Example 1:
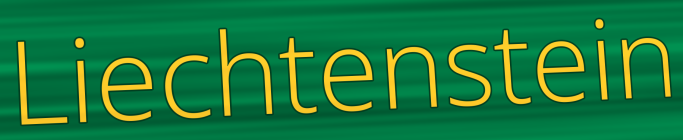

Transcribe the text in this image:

Liechtenstein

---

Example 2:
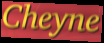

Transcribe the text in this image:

Cheyne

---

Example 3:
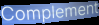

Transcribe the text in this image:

Complement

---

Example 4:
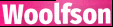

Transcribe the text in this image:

Woolfson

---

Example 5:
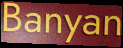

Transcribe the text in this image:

Banyan